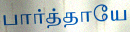
பார்த்தாயே